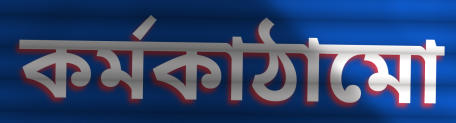
কর্মকাঠামো